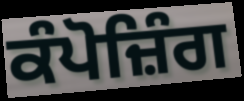
ਕੰਪੋਜ਼ਿੰਗ